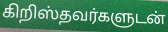
கிறிஸ்தவர்களுடன்